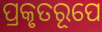
ପ୍ରକୃତରୂପେ